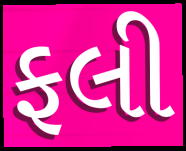
ફલી